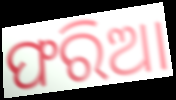
ଫରିଆ